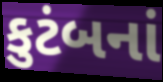
કુટંબનાં